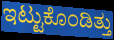
ಇಟ್ಟುಕೊಂಡಿತ್ತು